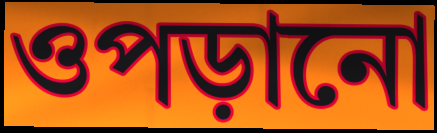
ওপড়ানো